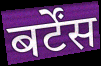
बर्टेंस